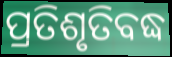
ପ୍ରତିଶୃତିବଦ୍ଧ